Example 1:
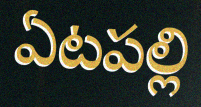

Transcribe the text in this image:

ఏటపల్లి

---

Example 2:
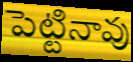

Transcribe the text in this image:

పెట్టినావు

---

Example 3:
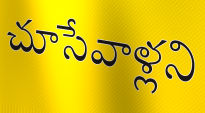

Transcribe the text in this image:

చూసేవాళ్లని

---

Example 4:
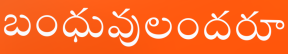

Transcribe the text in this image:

బంధువులందరూ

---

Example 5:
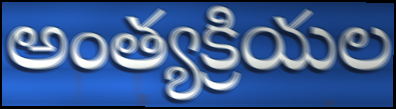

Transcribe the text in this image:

అంత్యక్రియల